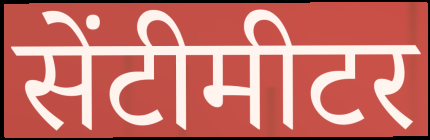
सेंटीमीटर